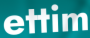
ettim